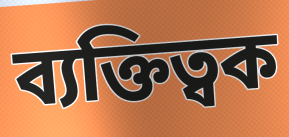
ব্যক্তিত্বক